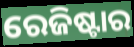
ରେଜିଷ୍ଟାର